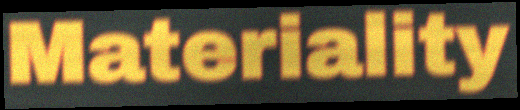
Materiality